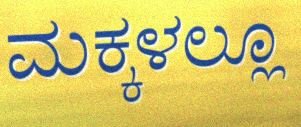
ಮಕ್ಕಳಲ್ಲೂ